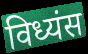
विध्यंस